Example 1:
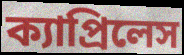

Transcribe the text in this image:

ক্যাপ্রিলেস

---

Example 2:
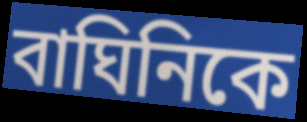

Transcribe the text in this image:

বাঘিনিকে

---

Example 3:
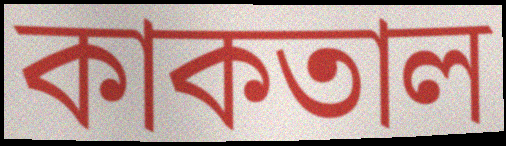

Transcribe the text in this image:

কাকতাল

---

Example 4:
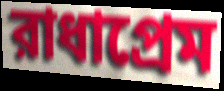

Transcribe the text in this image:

রাধাপ্রেম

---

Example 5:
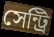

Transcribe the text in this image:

সেন্ট্রি